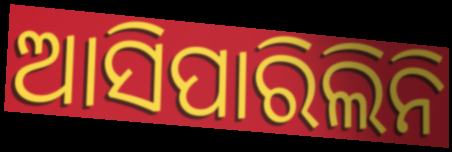
ଆସିପାରିଲିନି